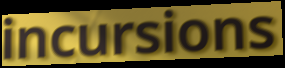
incursions